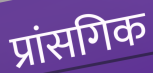
प्रांसगिक